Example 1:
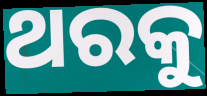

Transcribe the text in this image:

ଥରକୁ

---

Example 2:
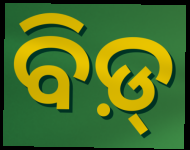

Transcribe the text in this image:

ବିଡ଼୍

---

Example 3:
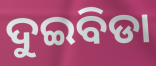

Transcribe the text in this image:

ଦୁଇବିଡା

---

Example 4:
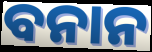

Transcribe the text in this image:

ବନାନ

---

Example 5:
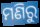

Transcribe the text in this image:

ମଣିରୁ